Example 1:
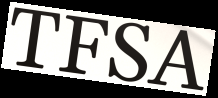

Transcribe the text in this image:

TFSA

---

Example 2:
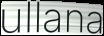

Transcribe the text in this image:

ullana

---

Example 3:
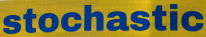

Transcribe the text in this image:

stochastic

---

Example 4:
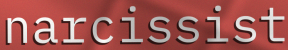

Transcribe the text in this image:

narcissist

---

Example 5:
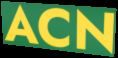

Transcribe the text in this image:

ACN